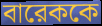
বারেককে